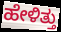
ಹೇಳಿತ್ತು